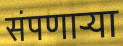
संपणार्‍या